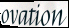
ovation